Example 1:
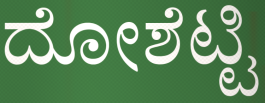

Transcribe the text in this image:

ದೋಶೆಟ್ಟಿ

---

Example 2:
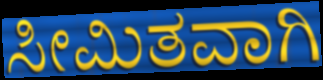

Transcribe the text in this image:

ಸೀಮಿತವಾಗಿ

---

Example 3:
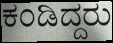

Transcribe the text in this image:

ಕಂಡಿದ್ದರು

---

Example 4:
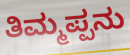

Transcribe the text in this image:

ತಿಮ್ಮಪ್ಪನು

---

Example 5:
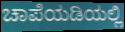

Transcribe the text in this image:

ಚಾಪೆಯಡಿಯಲ್ಲಿ